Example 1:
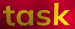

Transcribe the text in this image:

task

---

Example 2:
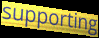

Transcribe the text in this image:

supporting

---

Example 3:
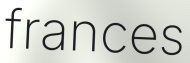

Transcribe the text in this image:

frances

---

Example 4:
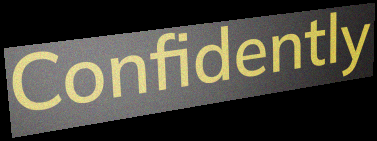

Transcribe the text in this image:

Confidently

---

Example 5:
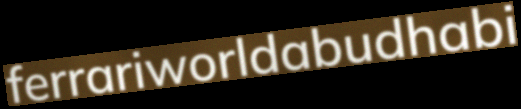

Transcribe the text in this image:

ferrariworldabudhabi